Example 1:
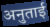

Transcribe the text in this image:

अनुताई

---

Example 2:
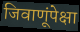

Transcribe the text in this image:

जिवाणूंपेक्षा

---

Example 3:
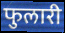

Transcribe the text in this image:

फुलारी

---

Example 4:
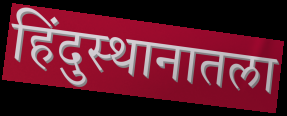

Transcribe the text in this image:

हिंदुस्थानातला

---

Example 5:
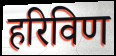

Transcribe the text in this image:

हरिविण